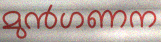
മുൻഗണന